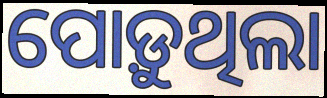
ପୋଡ଼ୁଥିଲା